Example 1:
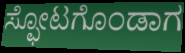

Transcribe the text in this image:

ಸ್ಫೋಟಗೊಂಡಾಗ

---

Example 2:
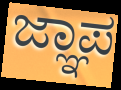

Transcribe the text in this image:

ಜ್ಞಾಪ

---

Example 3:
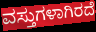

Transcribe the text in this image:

ವಸ್ತುಗಳಾಗಿರದೆ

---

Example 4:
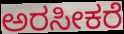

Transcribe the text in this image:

ಅರಸೀಕರೆ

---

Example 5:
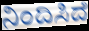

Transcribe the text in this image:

ನಿಂದಿಸಿದೆ